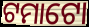
ଟମାଟୋ